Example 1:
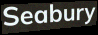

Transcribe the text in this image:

Seabury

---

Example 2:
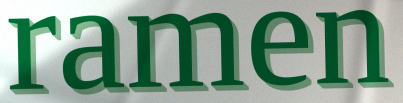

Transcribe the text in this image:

ramen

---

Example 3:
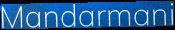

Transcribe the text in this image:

Mandarmani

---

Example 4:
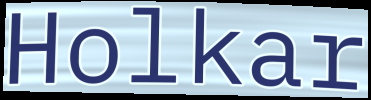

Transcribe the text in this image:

Holkar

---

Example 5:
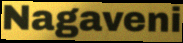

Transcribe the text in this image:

Nagaveni